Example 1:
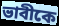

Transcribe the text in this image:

ভাবীকে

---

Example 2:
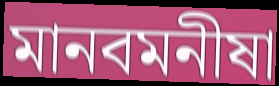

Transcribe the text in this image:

মানবমনীষা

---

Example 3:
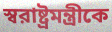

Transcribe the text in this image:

স্বরাষ্ট্রমন্ত্রীকে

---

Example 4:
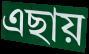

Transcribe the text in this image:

এছায়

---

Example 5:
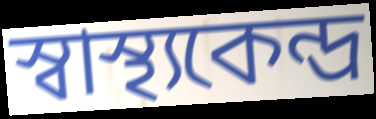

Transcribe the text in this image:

স্বাস্থ্যকেন্দ্র